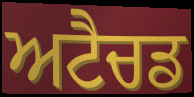
ਅਟੈਚਡ